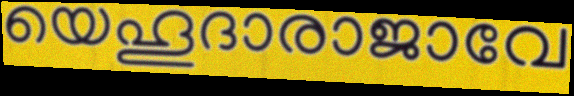
യെഹൂദാരാജാവേ